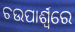
ଚଉପାର୍ଶ୍ୱରେ